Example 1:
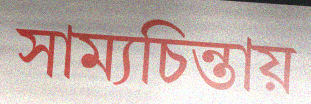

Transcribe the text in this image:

সাম্যচিন্তায়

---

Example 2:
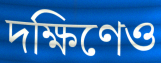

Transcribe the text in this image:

দক্ষিণেও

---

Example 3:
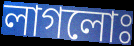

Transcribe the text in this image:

লাগলোঃ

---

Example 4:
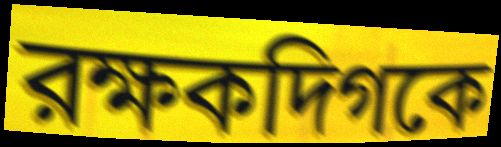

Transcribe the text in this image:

রক্ষকদিগকে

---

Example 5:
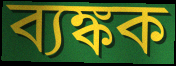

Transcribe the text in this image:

ব্যঙ্কক